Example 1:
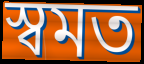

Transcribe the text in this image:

স্বমত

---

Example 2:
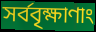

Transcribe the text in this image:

সর্ববৃক্ষাণাং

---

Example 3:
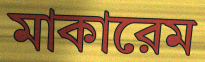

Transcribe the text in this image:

মাকারেম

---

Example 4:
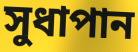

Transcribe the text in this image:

সুধাপান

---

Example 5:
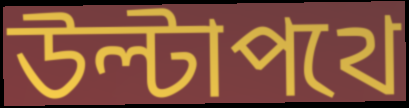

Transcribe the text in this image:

উল্টাপথে